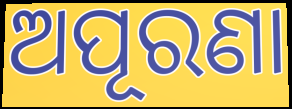
ଅପୂରଣା